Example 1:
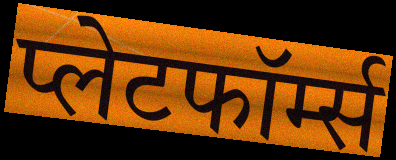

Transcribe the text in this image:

प्लेटफॉर्म्स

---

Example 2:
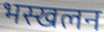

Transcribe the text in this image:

भस्खलन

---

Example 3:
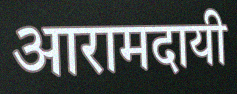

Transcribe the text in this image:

आरामदायी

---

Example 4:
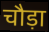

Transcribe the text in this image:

चौड़ा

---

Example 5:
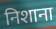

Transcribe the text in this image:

निशाना